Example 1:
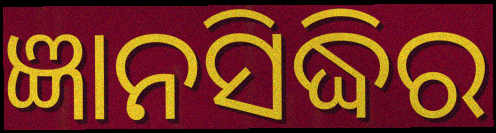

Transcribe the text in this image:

ଜ୍ଞାନସିଦ୍ଧିର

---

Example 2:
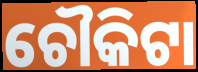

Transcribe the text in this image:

ଚୌକିଟା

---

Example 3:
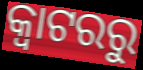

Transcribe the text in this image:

କ୍ୱାଟରରୁ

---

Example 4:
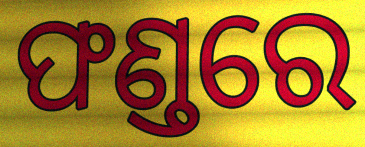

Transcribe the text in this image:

ଫଣ୍ଡରେ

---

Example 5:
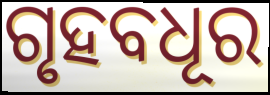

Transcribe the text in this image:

ଗୃହବଧୂର